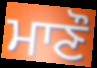
ਮਾਣੌ